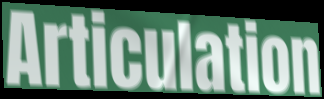
Articulation